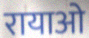
रायाओ